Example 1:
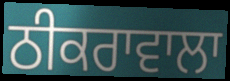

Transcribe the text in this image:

ਠੀਕਰਾਵਾਲਾ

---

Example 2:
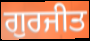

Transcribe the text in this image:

ਗੁਰਜੀਤ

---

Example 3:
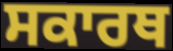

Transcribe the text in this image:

ਸਕਾਰਥ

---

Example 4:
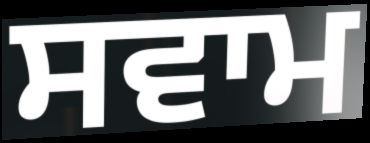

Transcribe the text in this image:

ਸਵਾਮ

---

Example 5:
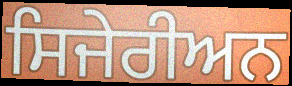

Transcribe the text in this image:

ਸਿਜੇਰੀਅਨ